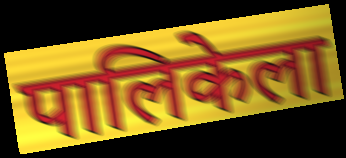
पालिकेला